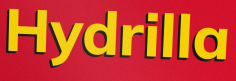
Hydrilla